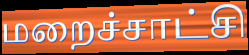
மறைச்சாட்சி